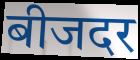
बीजदर